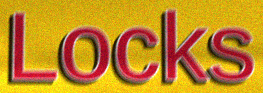
Locks